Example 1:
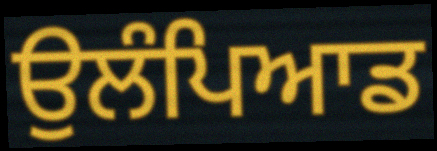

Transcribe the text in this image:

ਉਲੰਪਿਆਡ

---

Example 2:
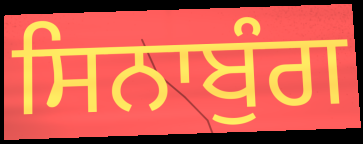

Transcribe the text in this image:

ਸਿਨਾਬੁੰਗ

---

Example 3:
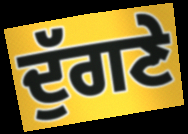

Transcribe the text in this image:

ਦੁੱਗਣੇ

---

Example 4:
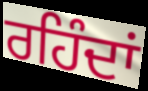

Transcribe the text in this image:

ਰਹਿੰਦਾਂ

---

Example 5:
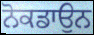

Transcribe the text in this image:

ਨੋਕਡਾਉਨ